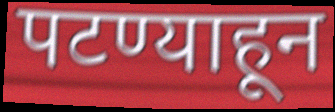
पटण्याहून